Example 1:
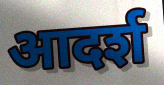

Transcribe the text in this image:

आदर्श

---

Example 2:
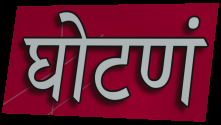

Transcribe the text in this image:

घोटणं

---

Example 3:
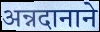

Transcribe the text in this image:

अन्नदानाने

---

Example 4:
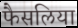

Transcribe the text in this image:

फैसलिया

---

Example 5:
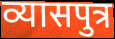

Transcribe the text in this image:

व्यासपुत्र